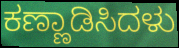
ಕಣ್ಣಾಡಿಸಿದಳು